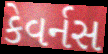
કેવર્નસ